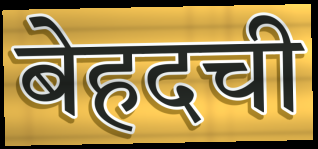
बेहदची